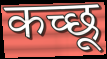
कच्छू